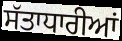
ਸੱਤਾਧਾਰੀਆਂ